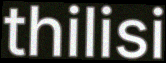
thilisi